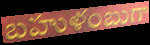
బహుళంబుగా